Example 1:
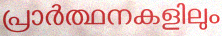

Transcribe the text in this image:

പ്രാർത്ഥനകളിലും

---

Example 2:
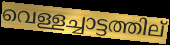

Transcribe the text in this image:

വെള്ളച്ചാട്ടത്തില്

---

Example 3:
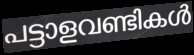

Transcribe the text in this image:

പട്ടാളവണ്ടികൾ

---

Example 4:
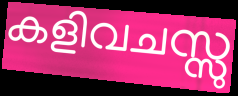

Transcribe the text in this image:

കളിവചസ്സു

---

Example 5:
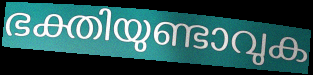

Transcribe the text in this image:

ഭക്തിയുണ്ടാവുക